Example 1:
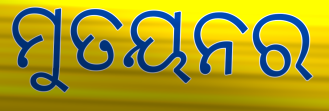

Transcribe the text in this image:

ମୁତୟନର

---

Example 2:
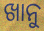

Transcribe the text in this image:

ଖାନୁ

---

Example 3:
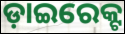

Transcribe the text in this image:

ଡ଼ାଇରେକ୍ଟ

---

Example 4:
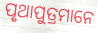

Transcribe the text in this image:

ପୃଥାପୁତ୍ରମାନେ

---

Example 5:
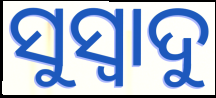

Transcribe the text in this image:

ସୁସ୍ୱାଦୁ